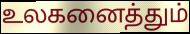
உலகனைத்தும்